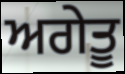
ਅਗੇਤੂ